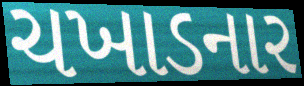
ચખાડનાર